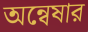
অন্বেষার